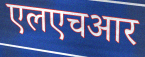
एलएचआर